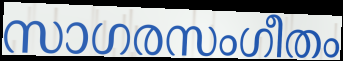
സാഗരസംഗീതം